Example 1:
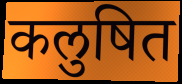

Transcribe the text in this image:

कलुषित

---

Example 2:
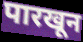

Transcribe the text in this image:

पारखून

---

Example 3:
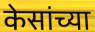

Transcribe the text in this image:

केसांच्या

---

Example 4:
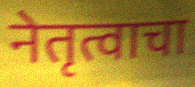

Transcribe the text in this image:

नेतृत्वाचा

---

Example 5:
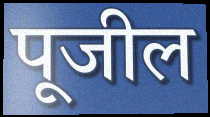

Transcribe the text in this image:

पूजील